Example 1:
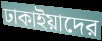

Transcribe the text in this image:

ঢাকাইয়াদের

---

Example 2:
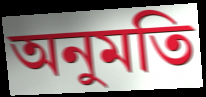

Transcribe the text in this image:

অনুমতি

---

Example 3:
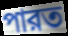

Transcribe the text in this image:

পারত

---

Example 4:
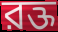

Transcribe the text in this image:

রক্ত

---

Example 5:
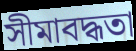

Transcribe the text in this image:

সীমাবদ্ধতা